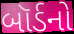
બૉર્ડનો